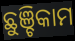
ଛୁଞ୍ଚିକାମ